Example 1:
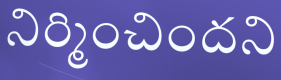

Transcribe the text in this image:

నిర్మించిందని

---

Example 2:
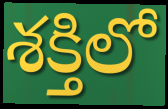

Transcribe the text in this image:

శక్తిలో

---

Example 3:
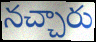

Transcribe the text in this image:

నచ్చారు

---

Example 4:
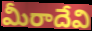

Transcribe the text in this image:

మీరాదేవి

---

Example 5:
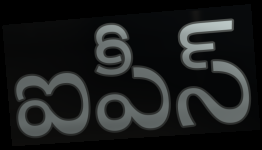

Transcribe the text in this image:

ఐపీస్